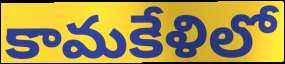
కామకేళిలో